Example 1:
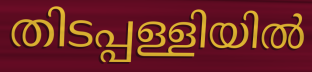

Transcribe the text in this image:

തിടപ്പള്ളിയിൽ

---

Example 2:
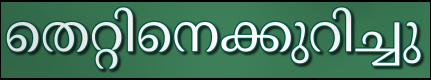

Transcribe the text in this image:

തെറ്റിനെക്കുറിച്ചു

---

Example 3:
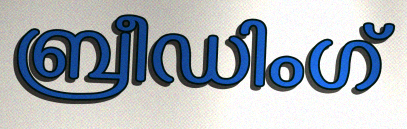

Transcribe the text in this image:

ബ്രീഡിംഗ്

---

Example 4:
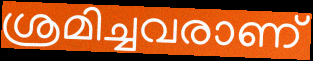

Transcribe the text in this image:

ശ്രമിച്ചവരാണ്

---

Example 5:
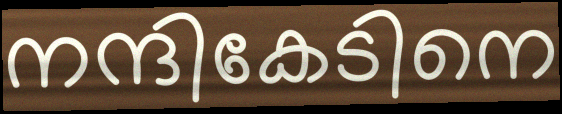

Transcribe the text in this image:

നന്ദികേടിനെ